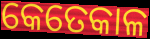
କେତେକାଳ